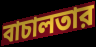
বাচালতার